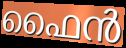
ഫൈൻ